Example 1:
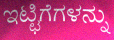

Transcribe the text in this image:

ಇಟ್ಟಿಗೆಗಳನ್ನು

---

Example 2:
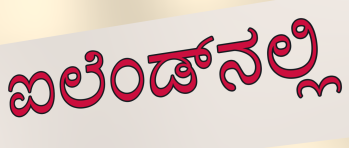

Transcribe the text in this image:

ಐಲೆಂಡ್‌ನಲ್ಲಿ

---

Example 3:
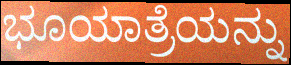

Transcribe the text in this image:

ಭೂಯಾತ್ರೆಯನ್ನು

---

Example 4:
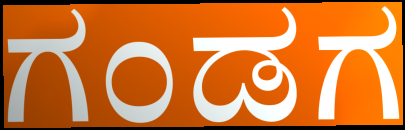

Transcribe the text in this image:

ಗಂಡಗ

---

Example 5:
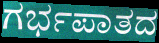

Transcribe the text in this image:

ಗರ್ಭಪಾತದ